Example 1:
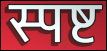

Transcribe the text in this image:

स्पष्ट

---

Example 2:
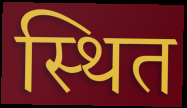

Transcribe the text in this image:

स्थित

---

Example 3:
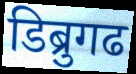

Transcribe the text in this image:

डिब्रुगढ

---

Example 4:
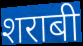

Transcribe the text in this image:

शराबी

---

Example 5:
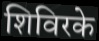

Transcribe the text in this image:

शिविरके